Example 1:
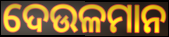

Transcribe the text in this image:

ଦେଉଳମାନ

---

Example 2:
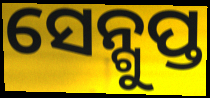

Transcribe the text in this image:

ସେନ୍ଗୁପ୍ତ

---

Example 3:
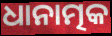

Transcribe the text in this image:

ଧାନାତ୍ମକ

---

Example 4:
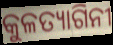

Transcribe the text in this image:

କୁଳତ୍ୟାଗିନୀ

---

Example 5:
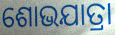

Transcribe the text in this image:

ଶୋଭଯାତ୍ରା